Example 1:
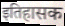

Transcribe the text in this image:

इतिहासक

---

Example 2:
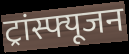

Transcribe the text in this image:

ट्रांस्फ्यूजन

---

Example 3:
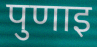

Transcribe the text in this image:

पुणाइ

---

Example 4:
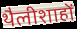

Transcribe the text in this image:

थैलीशाहों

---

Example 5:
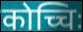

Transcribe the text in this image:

कोच्चिः